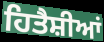
ਹਿਤੈਸ਼ੀਆਂ